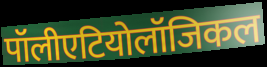
पॉलीएटियोलॉजिकल